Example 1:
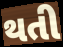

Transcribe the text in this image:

થતી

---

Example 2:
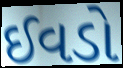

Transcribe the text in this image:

ઈવડો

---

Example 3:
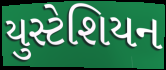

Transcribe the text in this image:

યુસ્ટેશિયન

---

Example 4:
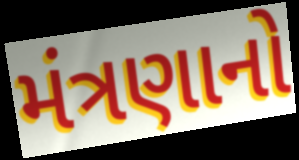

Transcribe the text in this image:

મંત્રણાનો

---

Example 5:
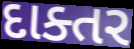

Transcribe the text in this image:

દાક્તર